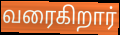
வரைகிறார்